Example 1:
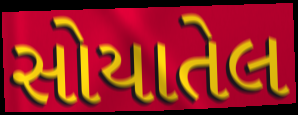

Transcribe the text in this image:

સોયાતેલ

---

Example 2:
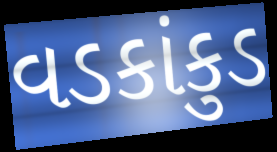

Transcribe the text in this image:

વડકાંકુડ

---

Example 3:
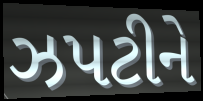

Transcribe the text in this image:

ઝપટીને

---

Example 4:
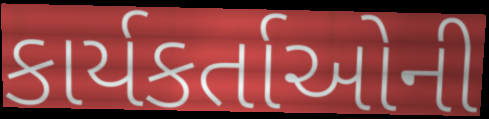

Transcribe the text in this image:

કાર્યકર્તાઓની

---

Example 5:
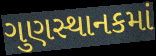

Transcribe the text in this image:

ગુણસ્થાનકમાં